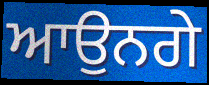
ਆਉਨਗੇ